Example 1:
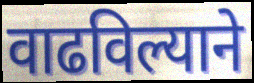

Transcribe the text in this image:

वाढविल्याने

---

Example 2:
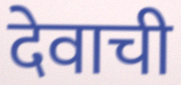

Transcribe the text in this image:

देवाची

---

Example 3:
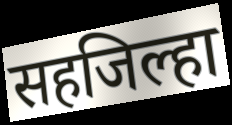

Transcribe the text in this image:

सहजिल्हा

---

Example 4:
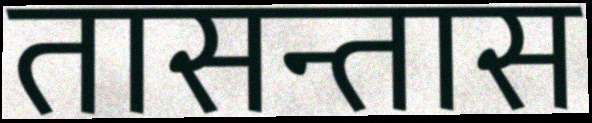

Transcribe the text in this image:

तासन्तास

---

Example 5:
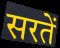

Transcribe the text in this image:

सरतें